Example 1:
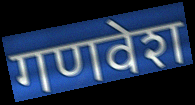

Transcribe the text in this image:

गणवेश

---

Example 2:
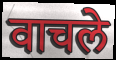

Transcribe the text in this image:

वाचले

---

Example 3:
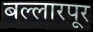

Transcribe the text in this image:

बल्लारपूर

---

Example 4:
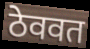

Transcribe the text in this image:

ठेववत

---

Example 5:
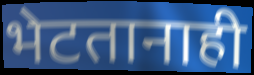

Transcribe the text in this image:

भेटतानाही